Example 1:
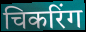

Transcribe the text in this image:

चिकरिंग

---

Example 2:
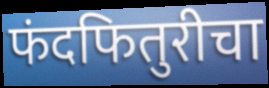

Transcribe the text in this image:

फंदफितुरीचा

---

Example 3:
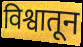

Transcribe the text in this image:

विश्वातून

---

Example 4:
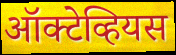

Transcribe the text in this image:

ऑक्टेव्हियस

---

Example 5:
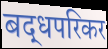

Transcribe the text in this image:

बद्धपरिकर